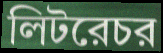
লিটরেচর